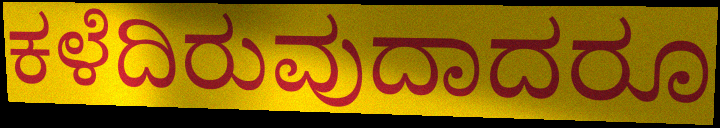
ಕಳೆದಿರುವುದಾದರೂ